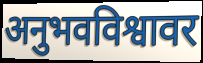
अनुभवविश्वावर